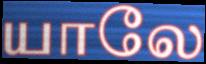
யாலே